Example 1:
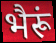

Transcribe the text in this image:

भैरूं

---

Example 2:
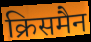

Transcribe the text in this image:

क्रिसमैन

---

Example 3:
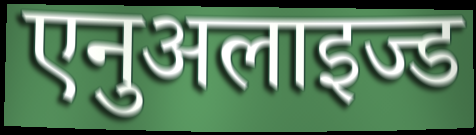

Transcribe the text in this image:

एनुअलाइज्ड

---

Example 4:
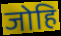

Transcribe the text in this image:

जोहि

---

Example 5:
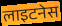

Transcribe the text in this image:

लाइटनेस